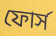
ফোর্স